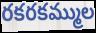
రకరకమ్ముల